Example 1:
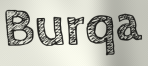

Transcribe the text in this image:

Burqa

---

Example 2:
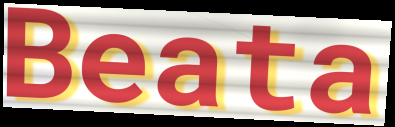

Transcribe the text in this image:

Beata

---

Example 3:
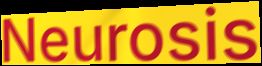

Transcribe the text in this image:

Neurosis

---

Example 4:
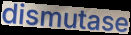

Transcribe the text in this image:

dismutase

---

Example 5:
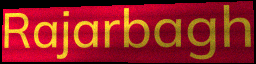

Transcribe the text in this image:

Rajarbagh